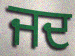
ਜਦ